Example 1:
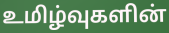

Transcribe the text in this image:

உமிழ்வுகளின்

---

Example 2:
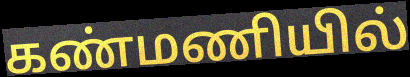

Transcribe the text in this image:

கண்மணியில்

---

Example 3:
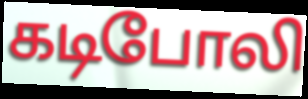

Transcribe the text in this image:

கடிபோலி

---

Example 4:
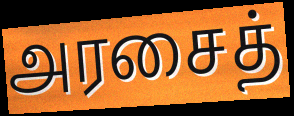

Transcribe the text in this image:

அரசைத்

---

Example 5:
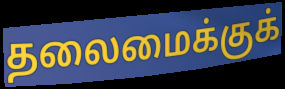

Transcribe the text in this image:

தலைமைக்குக்